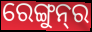
ରେଙ୍ଗୁନ୍‌ର